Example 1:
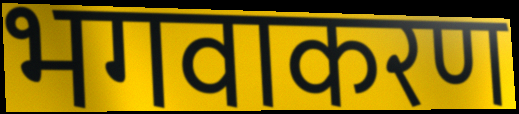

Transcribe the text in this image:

भगवाकरण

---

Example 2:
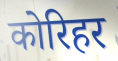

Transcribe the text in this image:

कोरिहर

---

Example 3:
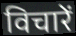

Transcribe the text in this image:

विचारें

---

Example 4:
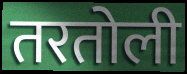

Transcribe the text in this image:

तरतोली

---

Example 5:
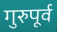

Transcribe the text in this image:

गुरुपूर्व